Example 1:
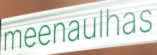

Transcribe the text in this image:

meenaulhas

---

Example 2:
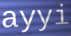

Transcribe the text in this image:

ayyi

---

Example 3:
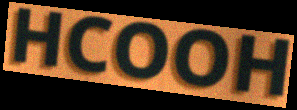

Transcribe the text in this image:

HCOOH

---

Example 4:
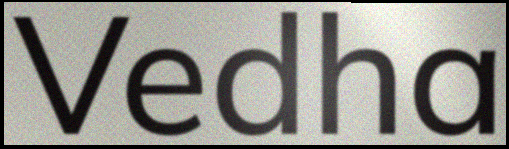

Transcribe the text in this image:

Vedha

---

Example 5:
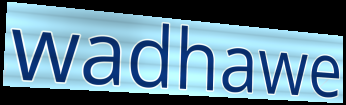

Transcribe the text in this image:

wadhawe